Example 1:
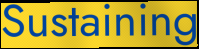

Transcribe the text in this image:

Sustaining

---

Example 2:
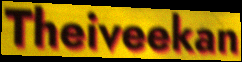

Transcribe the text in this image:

Theiveekan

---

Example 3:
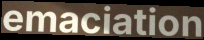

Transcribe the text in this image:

emaciation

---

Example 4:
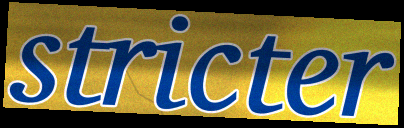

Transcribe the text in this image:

stricter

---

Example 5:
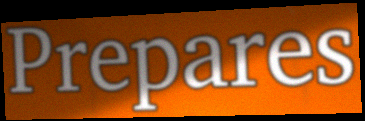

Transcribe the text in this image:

Prepares